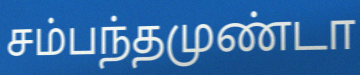
சம்பந்தமுண்டா